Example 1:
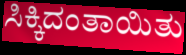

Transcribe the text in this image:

ಸಿಕ್ಕಿದಂತಾಯಿತು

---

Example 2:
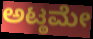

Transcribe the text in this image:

ಅಟ್ಠಮೇ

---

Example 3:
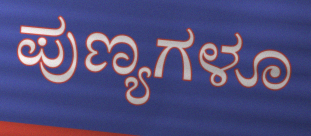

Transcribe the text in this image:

ಪುಣ್ಯಗಳೂ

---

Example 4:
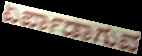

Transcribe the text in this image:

ಏರ್ಪಾಡಾಗುವ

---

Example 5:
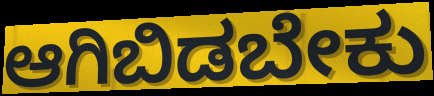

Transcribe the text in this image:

ಆಗಿಬಿಡಬೇಕು